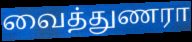
வைத்துணரா